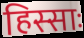
हिस्साः